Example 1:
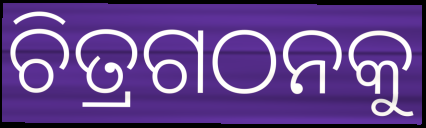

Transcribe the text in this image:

ଚିତ୍ରଗଠନକୁ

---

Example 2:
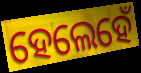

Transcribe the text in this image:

ହେଲେହେଁ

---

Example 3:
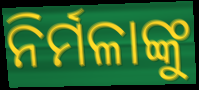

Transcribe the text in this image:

ନିର୍ମଳାଙ୍କୁ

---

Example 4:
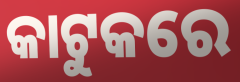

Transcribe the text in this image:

କାଟୁକରେ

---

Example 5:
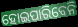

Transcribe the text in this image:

ହୋଇପାରିବେନି